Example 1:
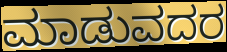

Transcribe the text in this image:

ಮಾಡುವದರ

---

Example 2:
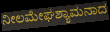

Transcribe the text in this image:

ನೀಲಮೇಘಶ್ಯಾಮನಾದ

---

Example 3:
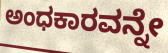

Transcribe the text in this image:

ಅಂಧಕಾರವನ್ನೇ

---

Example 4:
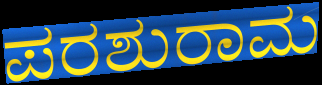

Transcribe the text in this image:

ಪರಶುರಾಮ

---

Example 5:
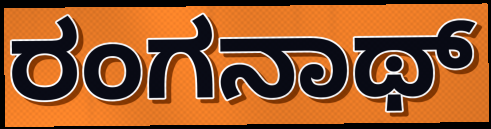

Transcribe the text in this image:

ರಂಗನಾಥ್